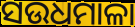
ସଉଧମାଳା